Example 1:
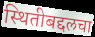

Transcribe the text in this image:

स्थितीबद्दलचा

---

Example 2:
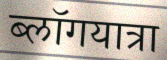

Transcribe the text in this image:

ब्लॉगयात्रा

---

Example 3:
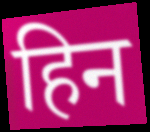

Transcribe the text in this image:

हिन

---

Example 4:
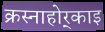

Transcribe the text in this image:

क्रस्नाहोर्काइ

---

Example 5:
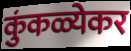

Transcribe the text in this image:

कुंकळ्येकर